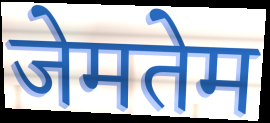
जेमतेम